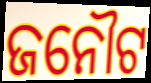
ଜନୌଟ